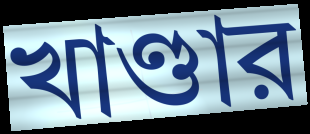
খাণ্ডার